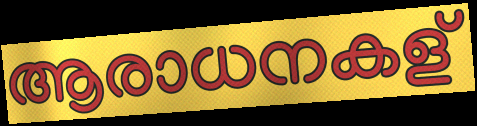
ആരാധനകള്